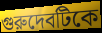
গুরুদেবটিকে